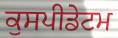
ਕੁਸਪੀਡੇਟਮ